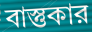
বাস্তুকার